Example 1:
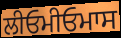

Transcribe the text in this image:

ਲੀਓਮੀਓਮਾਸ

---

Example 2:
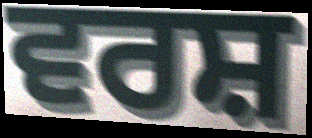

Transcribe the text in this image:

ਵਰਸ਼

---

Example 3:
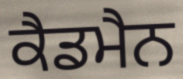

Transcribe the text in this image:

ਕੈਡਮੈਨ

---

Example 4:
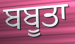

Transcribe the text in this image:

ਬਬੂਤਾ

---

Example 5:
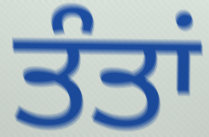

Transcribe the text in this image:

ਤੰਤਾਂ